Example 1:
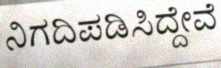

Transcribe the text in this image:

ನಿಗದಿಪಡಿಸಿದ್ದೇವೆ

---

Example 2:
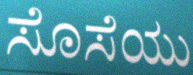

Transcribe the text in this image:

ಸೊಸೆಯು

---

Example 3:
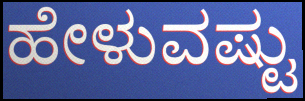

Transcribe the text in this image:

ಹೇಳುವಷ್ಟು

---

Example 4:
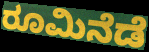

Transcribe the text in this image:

ರೂಮಿನೆಡೆ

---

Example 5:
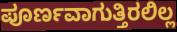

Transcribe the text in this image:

ಪೂರ್ಣವಾಗುತ್ತಿರಲಿಲ್ಲ